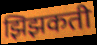
झिझकती